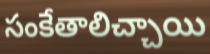
సంకేతాలిచ్చాయి